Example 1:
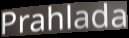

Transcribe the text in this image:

Prahlada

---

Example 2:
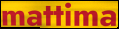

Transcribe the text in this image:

mattima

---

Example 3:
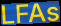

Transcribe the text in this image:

LFAs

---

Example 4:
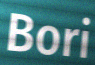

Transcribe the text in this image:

Bori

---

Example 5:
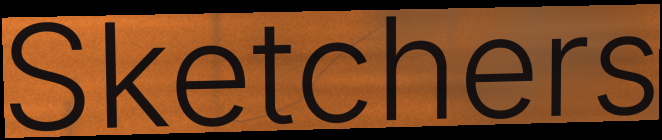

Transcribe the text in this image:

Sketchers